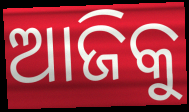
ଆଜିକୁ